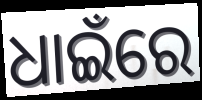
ଧାଇଁରେ